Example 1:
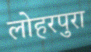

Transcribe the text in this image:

लोहरपुरा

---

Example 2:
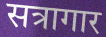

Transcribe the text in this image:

सत्रागार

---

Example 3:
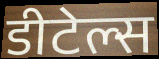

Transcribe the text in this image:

डीटेल्‍स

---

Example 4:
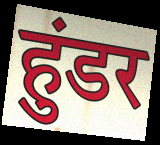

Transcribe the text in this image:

हुंडर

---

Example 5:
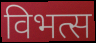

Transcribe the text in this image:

विभत्स